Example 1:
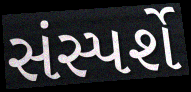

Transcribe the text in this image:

સંસ્પર્શે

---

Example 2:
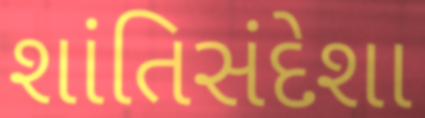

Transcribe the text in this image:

શાંતિસંદેશા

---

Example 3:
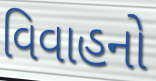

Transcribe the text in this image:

વિવાહનો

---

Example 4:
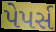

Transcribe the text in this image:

પેપર્સ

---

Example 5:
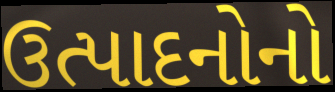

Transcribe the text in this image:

ઉત્પાદનોનો